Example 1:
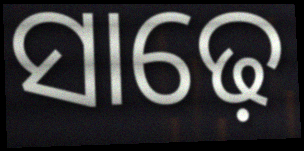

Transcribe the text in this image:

ସାଢ଼େ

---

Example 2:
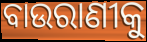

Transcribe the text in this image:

ବାଉରାଣୀକୁ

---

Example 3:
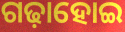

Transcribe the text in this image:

ଗଢ଼ାହୋଇ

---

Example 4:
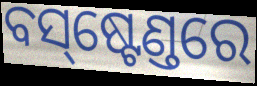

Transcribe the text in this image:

ବସ୍‌ଷ୍ଟେଣ୍ଡରେ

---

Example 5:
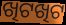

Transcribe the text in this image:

ଖିଟଖିଟ